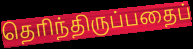
தெரிந்திருப்பதைப்